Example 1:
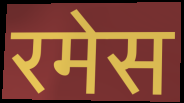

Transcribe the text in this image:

रमेस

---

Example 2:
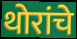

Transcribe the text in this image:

थोरांचे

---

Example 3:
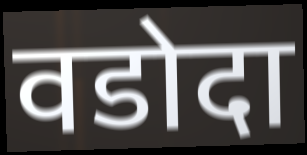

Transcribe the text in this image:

वडोदा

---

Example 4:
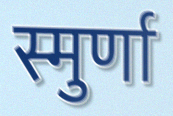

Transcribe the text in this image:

स्मुर्णा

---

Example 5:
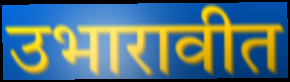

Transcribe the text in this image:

उभारावीत